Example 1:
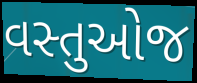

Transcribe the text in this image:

વસ્તુઓજ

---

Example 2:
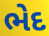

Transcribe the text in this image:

ભેદ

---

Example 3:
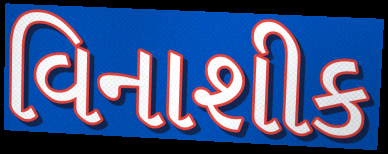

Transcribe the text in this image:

વિનાશીક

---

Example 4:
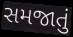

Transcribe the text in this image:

સમજાતું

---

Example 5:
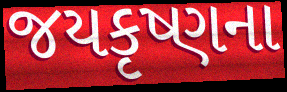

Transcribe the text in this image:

જયકૃષ્ણના